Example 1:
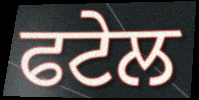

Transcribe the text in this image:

ਫਟੇਲ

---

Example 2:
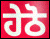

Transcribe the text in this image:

ਹੇਠੋ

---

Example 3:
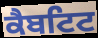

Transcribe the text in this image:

ਕੈਬਟਿਟ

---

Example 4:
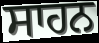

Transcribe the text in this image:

ਸਾਹਨ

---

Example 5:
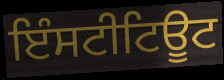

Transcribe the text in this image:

ਇੰਸਟੀਟਿਊਟ